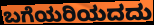
ಬಗೆಯರಿಯದದು